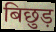
बिछुड़